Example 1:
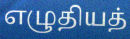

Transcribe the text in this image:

எழுதியத்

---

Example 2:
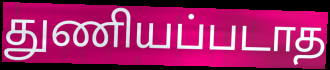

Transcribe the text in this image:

துணியப்படாத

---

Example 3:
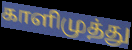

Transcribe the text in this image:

காளிமுத்து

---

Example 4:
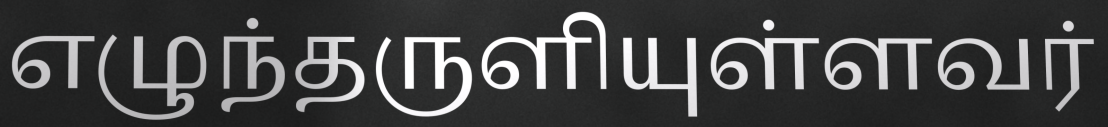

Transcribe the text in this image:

எழுந்தருளியுள்ளவர்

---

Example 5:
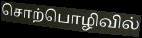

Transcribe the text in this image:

சொற்பொழிவில்